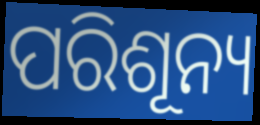
ପରିଶୂନ୍ୟ